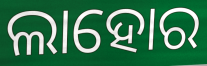
ଲାହୋର